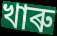
খাৰু